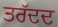
ਤਰੱਦਦ